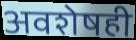
अवशेषही